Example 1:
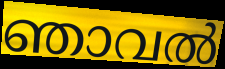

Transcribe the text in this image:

ഞാവൽ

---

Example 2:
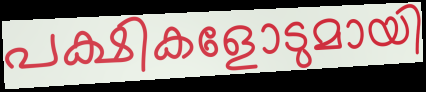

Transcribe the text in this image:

പക്ഷികളോടുമായി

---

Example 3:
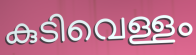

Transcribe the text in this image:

കുടിവെള്ളം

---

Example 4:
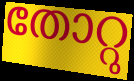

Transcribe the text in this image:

തോറ്റു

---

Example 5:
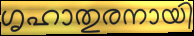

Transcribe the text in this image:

ഗൃഹാതുരനായി